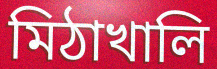
মিঠাখালি